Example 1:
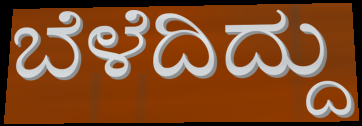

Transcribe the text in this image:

ಬೆಳೆದಿದ್ದು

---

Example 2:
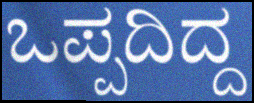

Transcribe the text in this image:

ಒಪ್ಪದಿದ್ದ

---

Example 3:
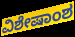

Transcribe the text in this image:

ವಿಶೇಷಾಂಶ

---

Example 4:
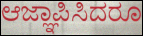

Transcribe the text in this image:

ಆಜ್ಞಾಪಿಸಿದರೂ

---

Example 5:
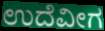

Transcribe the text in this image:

ಉದೆವೀಗ